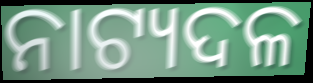
ନାଟ୍ୟଦଳ